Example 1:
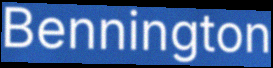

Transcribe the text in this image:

Bennington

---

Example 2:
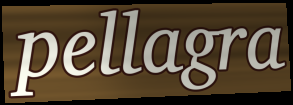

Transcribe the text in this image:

pellagra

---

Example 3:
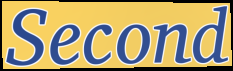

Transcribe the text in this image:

Second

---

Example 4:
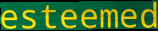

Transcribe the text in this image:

esteemed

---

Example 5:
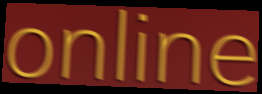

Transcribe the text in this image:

online